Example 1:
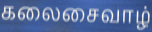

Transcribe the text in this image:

கலைசைவாழ்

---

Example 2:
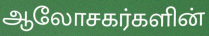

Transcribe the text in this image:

ஆலோசகர்களின்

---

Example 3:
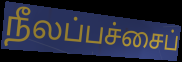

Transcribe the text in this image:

நீலப்பச்சைப்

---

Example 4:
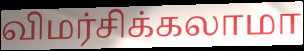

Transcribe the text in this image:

விமர்சிக்கலாமா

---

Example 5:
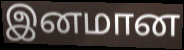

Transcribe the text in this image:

இனமான